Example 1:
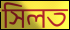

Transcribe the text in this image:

সিলত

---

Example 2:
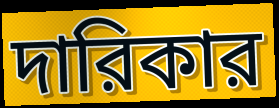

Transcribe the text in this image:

দারিকার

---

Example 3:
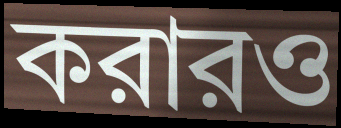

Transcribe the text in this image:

করারও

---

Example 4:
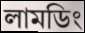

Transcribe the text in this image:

লামডিং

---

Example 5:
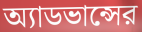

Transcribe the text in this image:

অ্যাডভান্সের